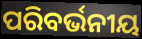
ପରିବର୍ଭନୀୟ